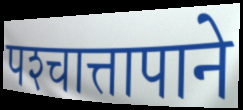
पश्चात्तापाने